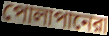
পোলাপানেরা